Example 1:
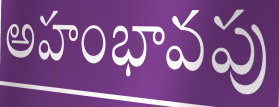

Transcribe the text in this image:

అహంభావపు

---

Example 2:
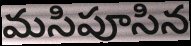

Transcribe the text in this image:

మసిపూసిన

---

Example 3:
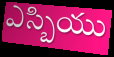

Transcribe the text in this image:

ఎస్బియు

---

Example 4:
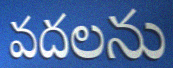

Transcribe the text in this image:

వదలను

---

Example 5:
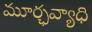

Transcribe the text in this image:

మూర్ఛవ్యాధి